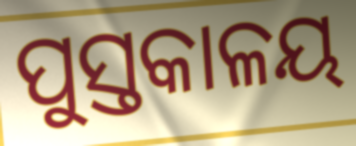
ପୁସ୍ତକାଳୟ